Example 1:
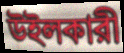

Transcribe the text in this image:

উইলকারী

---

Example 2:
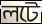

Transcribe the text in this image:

লটে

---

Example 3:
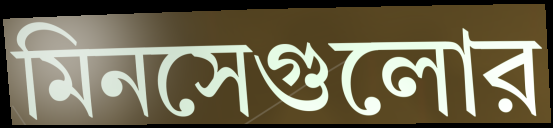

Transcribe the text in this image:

মিনসেগুলোর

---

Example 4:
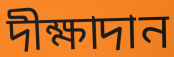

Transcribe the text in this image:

দীক্ষাদান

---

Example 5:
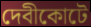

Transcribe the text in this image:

দেবীকোটে